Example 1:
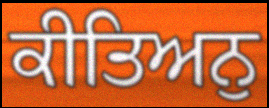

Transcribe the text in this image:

ਕੀਤਿਅਨੁ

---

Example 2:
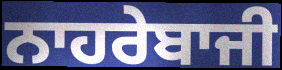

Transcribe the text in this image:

ਨਾਹਰੇਬਾਜੀ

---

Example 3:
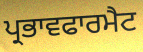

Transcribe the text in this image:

ਪ੍ਰਭਾਵਫਾਰਮੈਟ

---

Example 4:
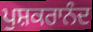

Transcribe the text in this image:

ਪੁਸ਼ਕਰਾਨੰਦ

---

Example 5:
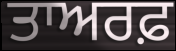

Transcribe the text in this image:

ਤਾਅਰਫ਼